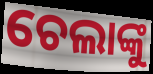
ଚେଲାଙ୍କୁ